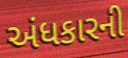
અંધકારની